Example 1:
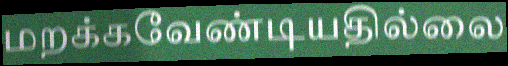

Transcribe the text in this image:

மறக்கவேண்டியதில்லை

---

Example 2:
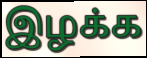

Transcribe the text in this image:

இழக்க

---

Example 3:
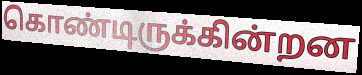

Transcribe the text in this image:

கொண்டிருக்கின்றன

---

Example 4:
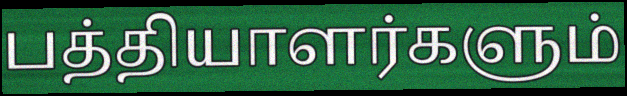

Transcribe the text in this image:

பத்தியாளர்களும்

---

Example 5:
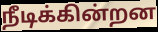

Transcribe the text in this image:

நீடிக்கின்றன